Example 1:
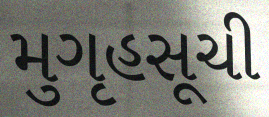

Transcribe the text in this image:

મુગૃહસૂચી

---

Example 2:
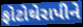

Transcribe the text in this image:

ફોટોથેરાપીને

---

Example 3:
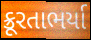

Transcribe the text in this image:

ક્રૂરતાભર્યા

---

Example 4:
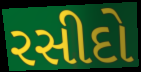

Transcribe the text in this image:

રસીદો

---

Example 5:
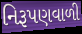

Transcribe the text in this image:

નિરૂપણવાળી